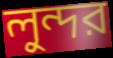
লুন্দর